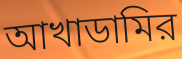
আখাডামির